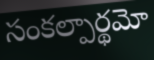
సంకల్పార్థమో